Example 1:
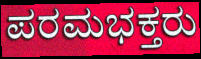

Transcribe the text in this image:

ಪರಮಭಕ್ತರು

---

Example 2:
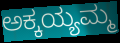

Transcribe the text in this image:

ಅಕ್ಕಯ್ಯಮ್ಮ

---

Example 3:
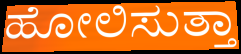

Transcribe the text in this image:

ಹೋಲಿಸುತ್ತಾ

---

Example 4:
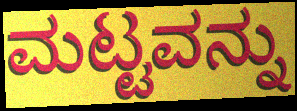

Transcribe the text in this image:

ಮಟ್ಟವನ್ನು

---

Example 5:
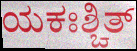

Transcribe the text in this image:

ಯಕಃಶ್ಚಿತ್